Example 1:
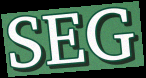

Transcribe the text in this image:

SEG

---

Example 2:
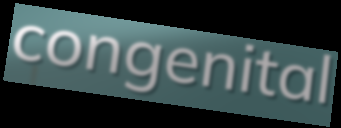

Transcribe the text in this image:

congenital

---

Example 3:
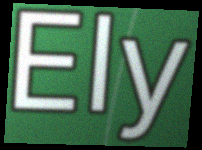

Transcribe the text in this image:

Ely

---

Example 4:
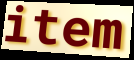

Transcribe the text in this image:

item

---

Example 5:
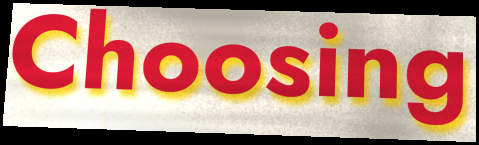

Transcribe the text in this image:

Choosing